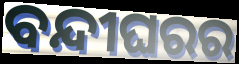
ବନ୍ଦୀଘରର